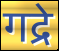
गद्रे